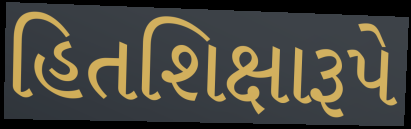
હિતશિક્ષારૂપે